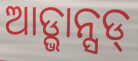
ଆଡ୍ଭାନ୍ସଡ୍